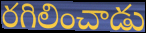
రగిలించాడు